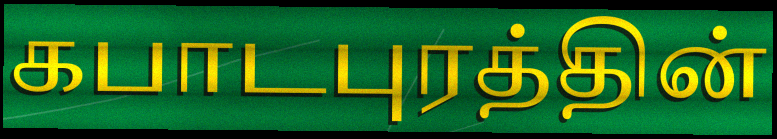
கபாடபுரத்தின்